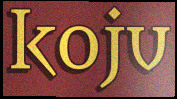
koju